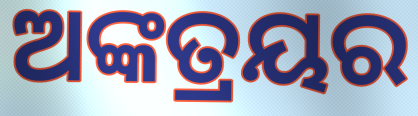
ଅଙ୍କତ୍ରୟର